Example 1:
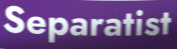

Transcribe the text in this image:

Separatist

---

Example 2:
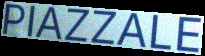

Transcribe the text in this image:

PIAZZALE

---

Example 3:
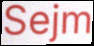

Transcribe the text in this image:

Sejm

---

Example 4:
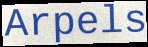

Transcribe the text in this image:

Arpels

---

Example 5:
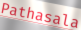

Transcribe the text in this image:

Pathasala